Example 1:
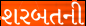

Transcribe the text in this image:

શરબતની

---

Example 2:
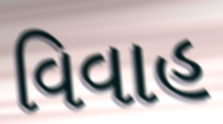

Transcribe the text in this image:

વિવાહ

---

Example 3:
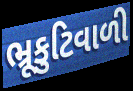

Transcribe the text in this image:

ભ્રૂકુટિવાળી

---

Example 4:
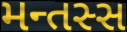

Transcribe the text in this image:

મન્તસ્સ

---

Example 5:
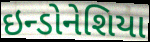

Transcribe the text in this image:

ઇન્ડોનેશિયા